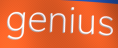
genius